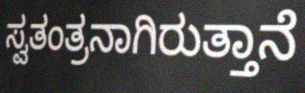
ಸ್ವತಂತ್ರನಾಗಿರುತ್ತಾನೆ